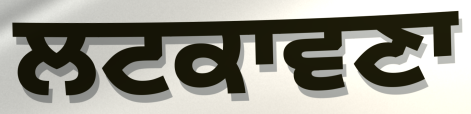
ਲਟਕਾਵਣਾ